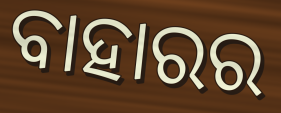
ବାହାରର